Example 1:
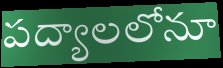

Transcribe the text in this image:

పద్యాలలోనూ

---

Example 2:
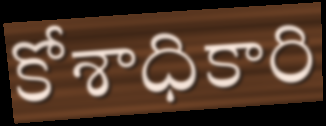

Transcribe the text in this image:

కోశాధికారి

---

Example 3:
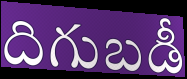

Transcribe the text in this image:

దిగుబడీ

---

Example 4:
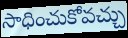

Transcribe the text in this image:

సాధించుకోవచ్చు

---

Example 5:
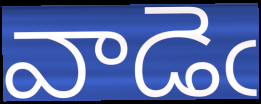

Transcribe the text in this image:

వాడెఁ